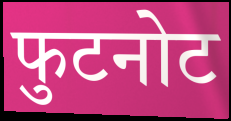
फुटनोट